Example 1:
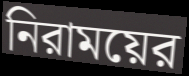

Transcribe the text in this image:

নিরাময়ের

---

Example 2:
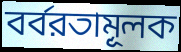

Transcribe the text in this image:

বর্বরতামূলক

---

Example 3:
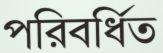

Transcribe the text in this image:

পরিবর্ধিত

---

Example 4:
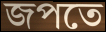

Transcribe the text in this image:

জপতে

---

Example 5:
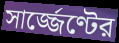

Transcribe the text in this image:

সার্জ্জেণ্টের